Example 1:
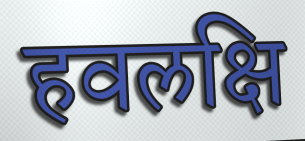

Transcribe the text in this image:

हवलक्षि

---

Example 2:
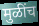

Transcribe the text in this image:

मुळींच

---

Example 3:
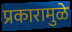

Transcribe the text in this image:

प्रकारामुळे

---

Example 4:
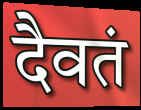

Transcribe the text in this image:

दैवतं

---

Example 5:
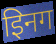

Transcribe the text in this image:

इिनग